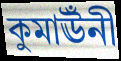
কুমাঊঁনী